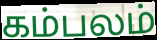
கம்பலம்